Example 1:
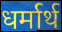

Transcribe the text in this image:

धर्मार्थ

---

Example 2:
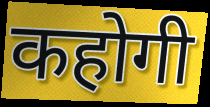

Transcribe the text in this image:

कहोगी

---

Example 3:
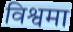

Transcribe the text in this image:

विश्वमा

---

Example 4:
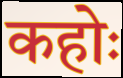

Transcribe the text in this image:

कहोः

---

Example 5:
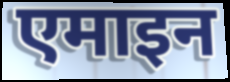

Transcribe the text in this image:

एमाइन